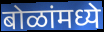
बोळांमध्ये